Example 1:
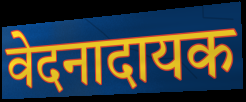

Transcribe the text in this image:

वेदनादायक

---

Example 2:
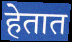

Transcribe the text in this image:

हेतात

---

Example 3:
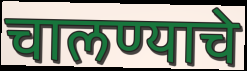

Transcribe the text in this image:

चालण्याचे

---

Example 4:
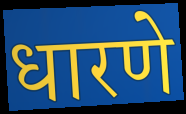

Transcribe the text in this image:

धारणे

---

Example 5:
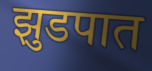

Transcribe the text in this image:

झुडपात